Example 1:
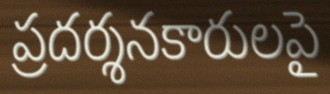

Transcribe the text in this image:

ప్రదర్శనకారులపై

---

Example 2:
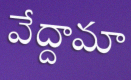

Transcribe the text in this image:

వేద్దామా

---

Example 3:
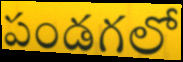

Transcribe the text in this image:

పండగలో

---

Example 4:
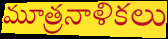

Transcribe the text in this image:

మూత్రనాళికలు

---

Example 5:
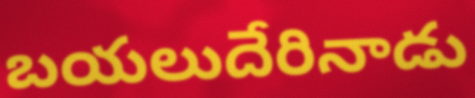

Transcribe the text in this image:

బయలుదేరినాడు